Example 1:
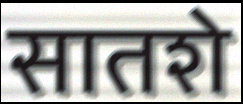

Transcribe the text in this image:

सातशे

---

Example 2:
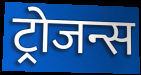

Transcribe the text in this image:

ट्रोजन्स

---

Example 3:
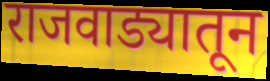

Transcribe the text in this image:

राजवाड्यातून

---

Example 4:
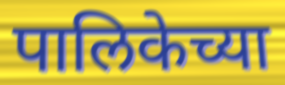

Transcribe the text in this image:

पालिकेच्या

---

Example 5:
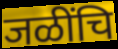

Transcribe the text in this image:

जळींचि